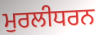
ਮੁਰਲੀਧਰਨ